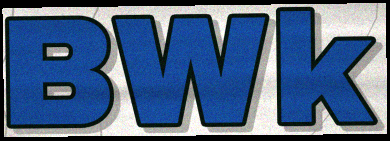
BWk